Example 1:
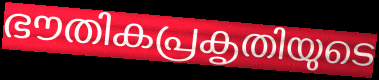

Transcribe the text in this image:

ഭൗതികപ്രകൃതിയുടെ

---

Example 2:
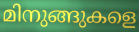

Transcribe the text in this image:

മിനുങ്ങുകളെ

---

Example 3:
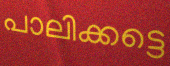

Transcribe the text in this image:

പാലിക്കട്ടെ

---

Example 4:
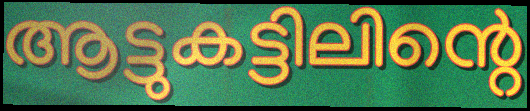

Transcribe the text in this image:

ആട്ടുകട്ടിലിന്റെ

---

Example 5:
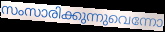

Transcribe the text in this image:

സംസാരിക്കുന്നുവെന്നോ